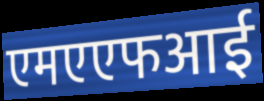
एमएएफआई